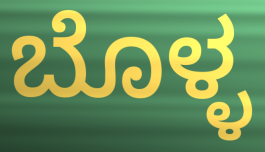
ಬೊಳ್ಳ